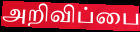
அறிவிப்பை